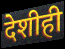
देशीही